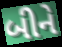
બીને